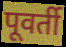
पूवर्ती